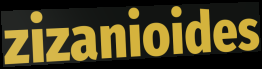
zizanioides